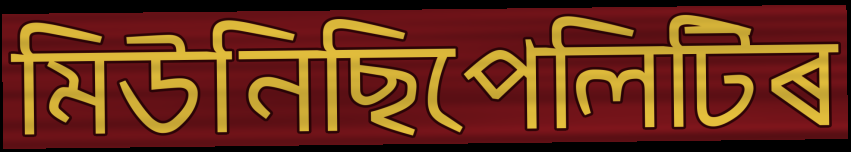
মিউনিছিপেলিটিৰ